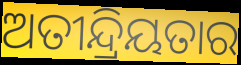
ଅତୀନ୍ଦ୍ରିୟତାର